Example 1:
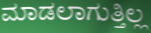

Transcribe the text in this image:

ಮಾಡಲಾಗುತ್ತಿಲ್ಲ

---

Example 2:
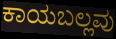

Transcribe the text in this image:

ಕಾಯಬಲ್ಲವು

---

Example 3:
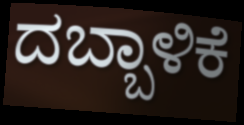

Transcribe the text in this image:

ದಬ್ಬಾಳಿಕೆ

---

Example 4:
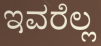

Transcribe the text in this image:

ಇವರೆಲ್ಲ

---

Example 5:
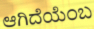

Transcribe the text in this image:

ಆಗಿದೆಯೆಂಬ